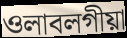
ওলাবলগীয়া